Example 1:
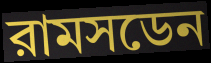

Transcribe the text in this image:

রামসডেন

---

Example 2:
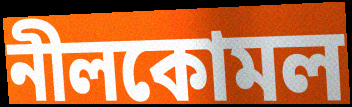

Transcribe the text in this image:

নীলকোমল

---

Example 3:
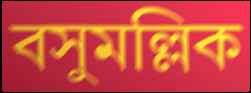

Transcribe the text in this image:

বসুমল্লিক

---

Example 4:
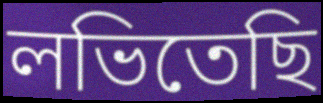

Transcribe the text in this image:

লভিতেছি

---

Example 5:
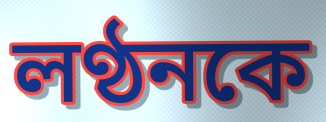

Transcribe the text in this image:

লণ্ঠনকে